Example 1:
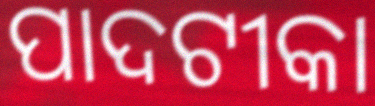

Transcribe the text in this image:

ପାଦଟୀକା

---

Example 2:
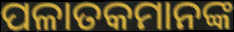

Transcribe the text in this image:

ପଳାତକମାନଙ୍କ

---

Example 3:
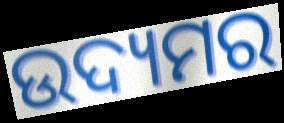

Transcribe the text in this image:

ଉଦ୍ୟମର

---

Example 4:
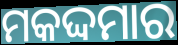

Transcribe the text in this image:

ମକଦ୍ଦମାର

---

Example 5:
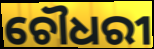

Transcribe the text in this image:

ଚୌଧରୀ